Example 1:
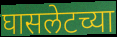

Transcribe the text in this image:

घासलेटच्या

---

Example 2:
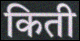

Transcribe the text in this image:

किती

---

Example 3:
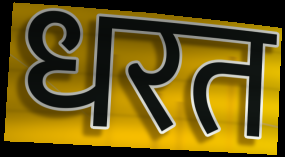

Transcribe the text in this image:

धरत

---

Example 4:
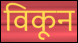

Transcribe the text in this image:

विकून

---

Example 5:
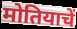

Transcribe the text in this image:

मोतियाचें